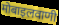
मोबाइलवाणी